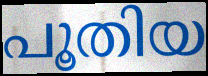
പൂതിയ